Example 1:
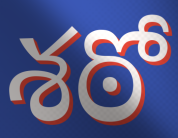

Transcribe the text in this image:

శఠో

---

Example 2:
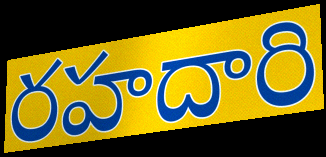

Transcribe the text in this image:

రహదారి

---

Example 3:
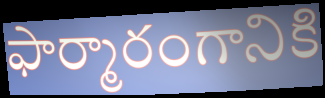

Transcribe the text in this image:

ఫార్మారంగానికి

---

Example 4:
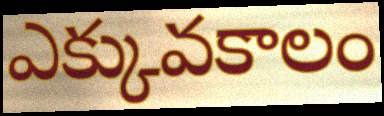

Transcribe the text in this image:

ఎక్కువకాలం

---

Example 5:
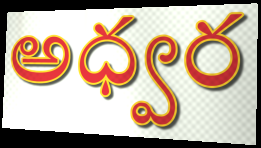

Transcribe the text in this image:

అధ్వర